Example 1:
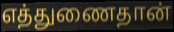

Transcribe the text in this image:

எத்துணைதான்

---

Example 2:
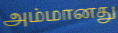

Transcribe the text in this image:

அம்மானது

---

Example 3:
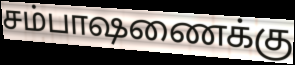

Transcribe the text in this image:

சம்பாஷணைக்கு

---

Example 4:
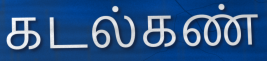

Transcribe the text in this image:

கடல்கண்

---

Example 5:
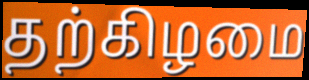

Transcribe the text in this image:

தற்கிழமை